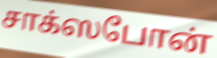
சாக்ஸபோன்